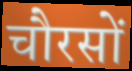
चौरसों